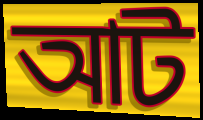
আট